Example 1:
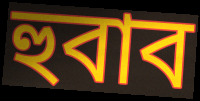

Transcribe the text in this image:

হুবাব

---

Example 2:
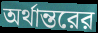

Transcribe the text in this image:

অর্থান্তরের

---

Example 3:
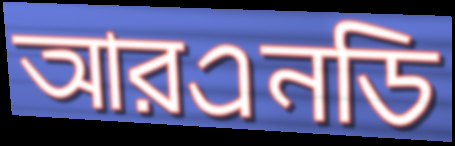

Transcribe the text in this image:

আরএনডি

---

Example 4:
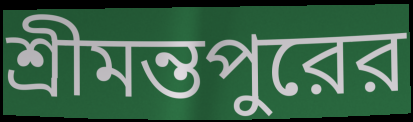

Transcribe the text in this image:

শ্রীমন্তপুরের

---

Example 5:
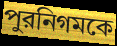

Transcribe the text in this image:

পুরনিগমকে